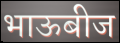
भाऊबीज